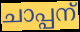
ചാപ്പന്